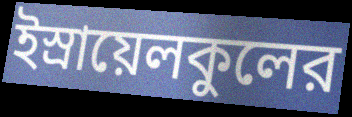
ইস্রায়েলকুলের